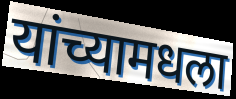
यांच्यामधला